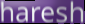
haresh